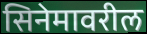
सिनेमावरील